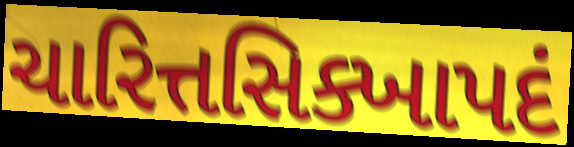
ચારિત્તસિક્ખાપદં